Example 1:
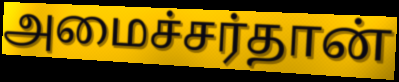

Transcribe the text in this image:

அமைச்சர்தான்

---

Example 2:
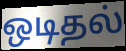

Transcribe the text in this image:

ஒடிதல்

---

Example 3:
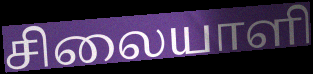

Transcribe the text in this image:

சிலையாளி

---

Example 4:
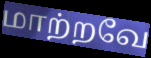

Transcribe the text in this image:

மாற்றவே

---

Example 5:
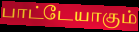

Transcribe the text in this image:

பாட்டேயாகும்